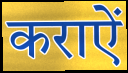
कराऐं